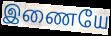
இணையே